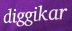
diggikar